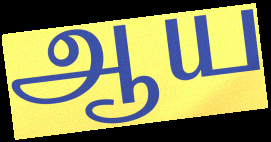
ஆய